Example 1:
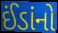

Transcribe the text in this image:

ઈંડાંનો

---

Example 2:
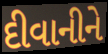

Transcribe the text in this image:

દીવાનીને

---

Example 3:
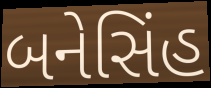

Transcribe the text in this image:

બનેસિંહ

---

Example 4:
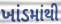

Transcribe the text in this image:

ખાંડમાંથી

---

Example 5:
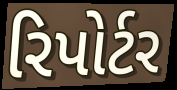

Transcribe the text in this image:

રિપોર્ટર